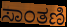
ಸಾಂತಣಿ